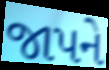
જાપને